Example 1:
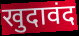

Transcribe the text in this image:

खुदावंद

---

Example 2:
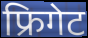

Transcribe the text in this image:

फ्रिगेट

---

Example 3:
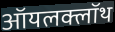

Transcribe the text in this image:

ऑयलक्लॉथ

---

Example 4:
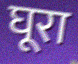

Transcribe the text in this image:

घूरा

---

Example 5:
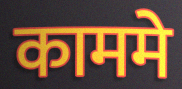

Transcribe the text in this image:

काममे